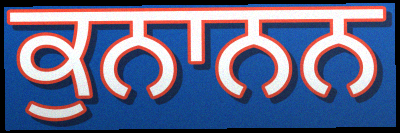
ਕੁਨਾਨਨ